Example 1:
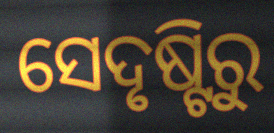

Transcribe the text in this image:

ସେଦୃଷ୍ଟିରୁ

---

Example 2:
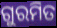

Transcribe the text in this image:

ଗୁରମିତ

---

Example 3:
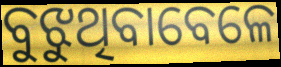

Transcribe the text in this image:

ବୁଝୁଥିବାବେଳେ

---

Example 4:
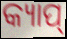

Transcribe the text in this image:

କ୍ୟାପ୍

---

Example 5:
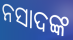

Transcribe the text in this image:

ନସାଦଙ୍କ